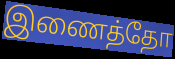
இணைத்தோ